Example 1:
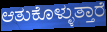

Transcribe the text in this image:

ಆತುಕೊಳ್ಳುತ್ತಾರೆ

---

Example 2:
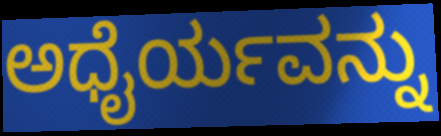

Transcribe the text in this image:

ಅಧೈರ್ಯವನ್ನು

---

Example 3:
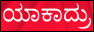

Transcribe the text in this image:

ಯಾಕಾದ್ರು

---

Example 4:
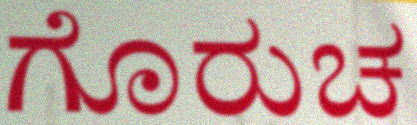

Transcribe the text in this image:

ಗೊರುಚ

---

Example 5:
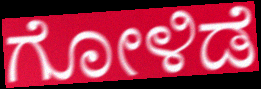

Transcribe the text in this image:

ಗೋಳಿಡೆ